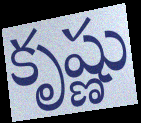
కృష్ణు